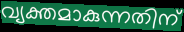
വ്യക്തമാകുന്നതിന്